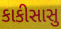
કાકીસાસુ